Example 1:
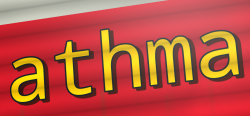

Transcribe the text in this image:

athma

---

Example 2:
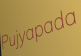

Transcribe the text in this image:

Pujyapada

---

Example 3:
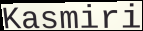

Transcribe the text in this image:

Kasmiri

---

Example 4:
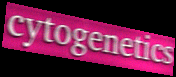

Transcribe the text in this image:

cytogenetics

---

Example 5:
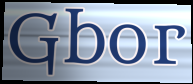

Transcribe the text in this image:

Gbor